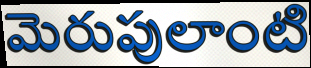
మెరుపులాంటి